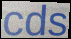
cds